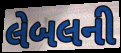
લેબલની